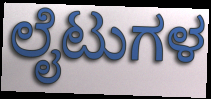
ಲೈಟುಗಳ